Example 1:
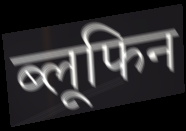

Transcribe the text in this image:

ब्लूफिन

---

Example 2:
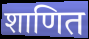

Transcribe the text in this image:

शाणित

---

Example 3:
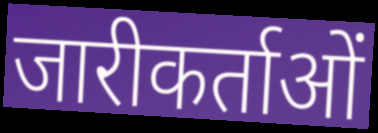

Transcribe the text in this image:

जारीकर्ताओं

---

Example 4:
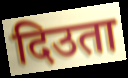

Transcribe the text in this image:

दिउता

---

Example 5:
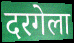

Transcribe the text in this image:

दरगेला